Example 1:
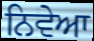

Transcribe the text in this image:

ਨਿਵੇਆ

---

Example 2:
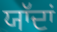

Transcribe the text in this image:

ਯਾੱਦਾਂ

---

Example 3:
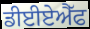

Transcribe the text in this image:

ਡੀਈਏਐੱਫ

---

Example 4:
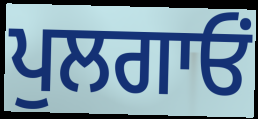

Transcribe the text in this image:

ਪੁਲਗਾਓਂ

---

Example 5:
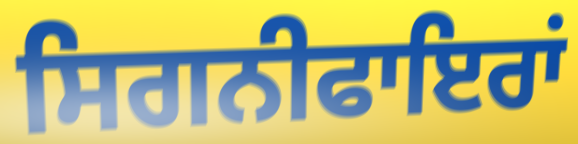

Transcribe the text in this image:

ਸਿਗਨੀਫਾਇਰਾਂ